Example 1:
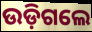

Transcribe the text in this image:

ଉଡ଼ିଗଲେ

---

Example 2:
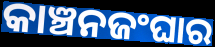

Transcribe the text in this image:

କାଞ୍ଚନଜଂଘାର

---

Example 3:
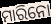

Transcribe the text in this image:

ମାରିନୋ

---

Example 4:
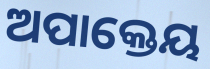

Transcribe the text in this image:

ଅପାକ୍ତେୟ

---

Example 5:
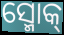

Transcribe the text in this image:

ସ୍ମୋକ୍